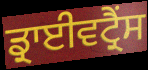
ਡ੍ਰਾਈਵਟ੍ਰੈਂਸ